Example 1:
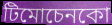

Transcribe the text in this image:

টিমোচেনকো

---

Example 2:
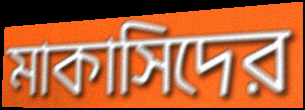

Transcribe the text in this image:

মাকাসিদের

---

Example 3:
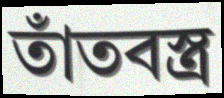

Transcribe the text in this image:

তাঁতবস্ত্র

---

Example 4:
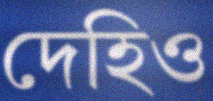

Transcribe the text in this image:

দেহিও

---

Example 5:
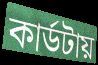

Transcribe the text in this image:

কার্ডটায়